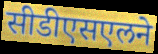
सीडीएसएलने